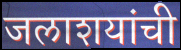
जलाशयांची